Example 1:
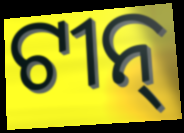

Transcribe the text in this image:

ଟୀନ୍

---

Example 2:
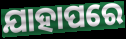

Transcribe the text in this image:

ଯାହାପରେ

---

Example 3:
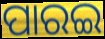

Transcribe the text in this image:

ପାରଇ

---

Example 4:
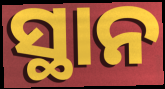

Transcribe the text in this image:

ସ୍ଥାନ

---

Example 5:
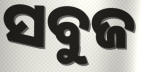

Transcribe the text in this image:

ସବୁଜ